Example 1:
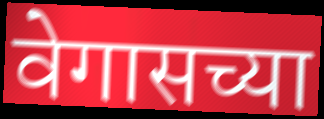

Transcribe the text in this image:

वेगासच्या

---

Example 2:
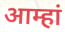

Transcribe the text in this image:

आम्हां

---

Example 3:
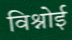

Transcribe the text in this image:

विश्नोई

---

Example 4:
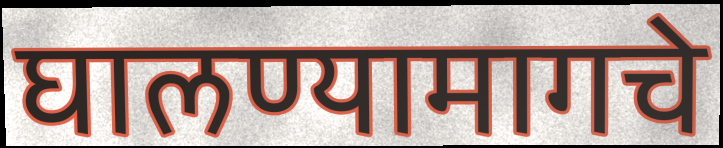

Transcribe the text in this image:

घालण्यामागचे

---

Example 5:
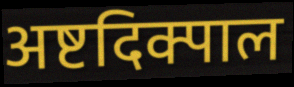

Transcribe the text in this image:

अष्टदिक्पाल